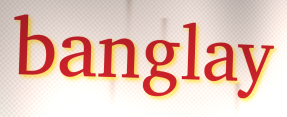
banglay